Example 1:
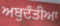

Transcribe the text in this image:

ਅਬੁਦੰਤੀਆ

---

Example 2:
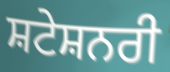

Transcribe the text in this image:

ਸ਼ਟੇਸ਼ਨਰੀ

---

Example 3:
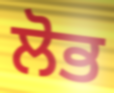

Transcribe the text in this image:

ਲੋਭ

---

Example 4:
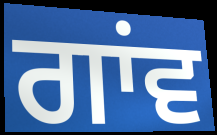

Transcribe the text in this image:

ਗਾਂਵ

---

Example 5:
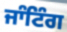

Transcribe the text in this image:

ਜਾੰਟਿੰਗ